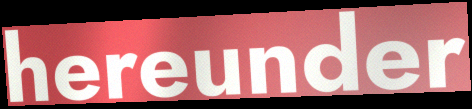
hereunder